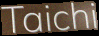
Taichi